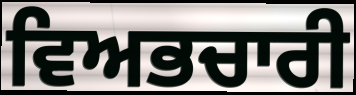
ਵਿਅਭਚਾਰੀ